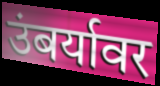
उंबर्यावर